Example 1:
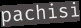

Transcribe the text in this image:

pachisi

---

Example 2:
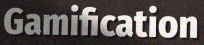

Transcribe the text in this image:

Gamification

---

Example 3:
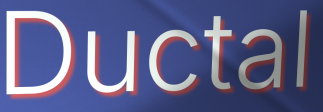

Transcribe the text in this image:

Ductal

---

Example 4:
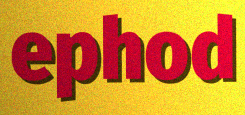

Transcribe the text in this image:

ephod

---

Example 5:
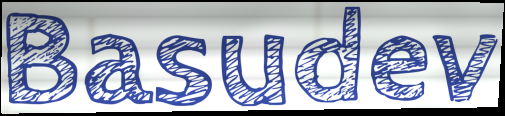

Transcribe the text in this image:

Basudev